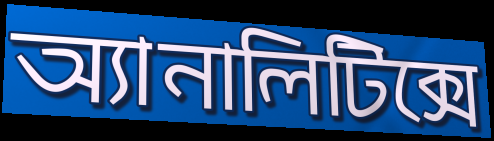
অ্যানালিটিক্সে